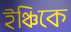
ইঞ্চিকে